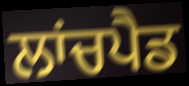
ਲਾਂਚਪੈਡ